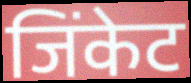
जिंकेट